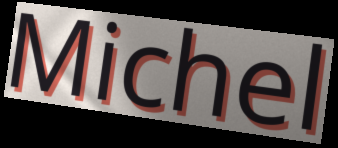
Michel